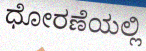
ಧೋರಣೆಯಲ್ಲಿ